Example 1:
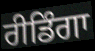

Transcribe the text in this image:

ਰੀਡਿੰਗਾ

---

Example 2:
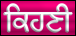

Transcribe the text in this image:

ਕਿਹਣੀ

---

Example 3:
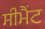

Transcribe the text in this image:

ਸੀਮੈਂਟ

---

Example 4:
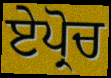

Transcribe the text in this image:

ਏਪ੍ਰੋਚ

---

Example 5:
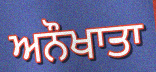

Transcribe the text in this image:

ਅਨੌਖਾਤਾ